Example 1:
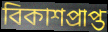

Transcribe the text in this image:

বিকাশপ্রাপ্ত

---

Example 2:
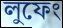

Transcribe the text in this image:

লুফেং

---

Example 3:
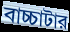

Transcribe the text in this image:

বাচ্চাটার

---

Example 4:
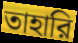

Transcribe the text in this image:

তাহারি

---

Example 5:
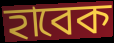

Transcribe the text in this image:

হাবেক